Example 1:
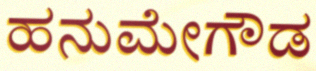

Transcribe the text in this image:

ಹನುಮೇಗೌಡ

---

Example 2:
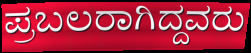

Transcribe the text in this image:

ಪ್ರಬಲರಾಗಿದ್ದವರು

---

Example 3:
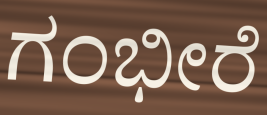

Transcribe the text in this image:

ಗಂಭೀರೆ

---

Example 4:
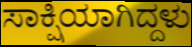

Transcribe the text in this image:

ಸಾಕ್ಷಿಯಾಗಿದ್ದಳು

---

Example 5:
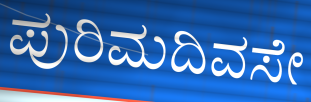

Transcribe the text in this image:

ಪುರಿಮದಿವಸೇ